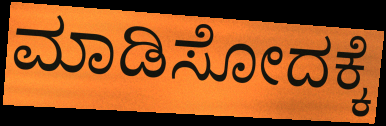
ಮಾಡಿಸೋದಕ್ಕೆ